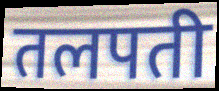
तलपती